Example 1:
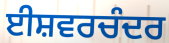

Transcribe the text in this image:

ਈਸ਼ਵਰਚੰਦਰ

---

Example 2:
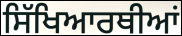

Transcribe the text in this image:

ਸਿੱਖਿਆਰਥੀਆਂ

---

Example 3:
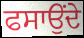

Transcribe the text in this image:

ਫਸਾਉਂਦੇ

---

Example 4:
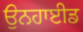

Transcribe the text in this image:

ਉਨਹਾਈਡ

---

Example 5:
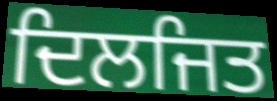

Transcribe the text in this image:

ਦਿਲਜਿਤ